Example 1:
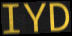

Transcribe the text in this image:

IYD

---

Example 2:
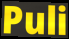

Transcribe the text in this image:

Puli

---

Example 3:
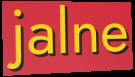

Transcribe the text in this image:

jalne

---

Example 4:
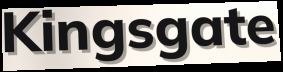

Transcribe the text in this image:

Kingsgate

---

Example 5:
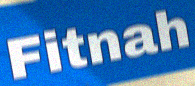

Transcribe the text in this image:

Fitnah